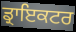
ਡ੍ਰਾਇਕਟਰ